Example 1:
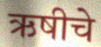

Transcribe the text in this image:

ऋषीचे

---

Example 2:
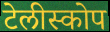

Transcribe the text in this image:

टेलीस्कोप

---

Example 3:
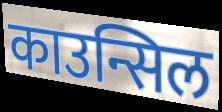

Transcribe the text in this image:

काउन्सिल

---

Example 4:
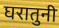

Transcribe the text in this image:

घरातुनी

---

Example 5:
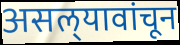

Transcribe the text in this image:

असल्यावांचून